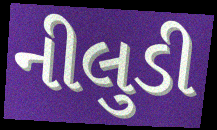
નીલુડી